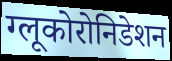
ग्लूकोरोनिडेशन